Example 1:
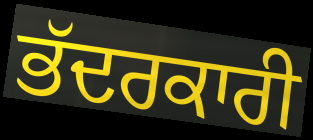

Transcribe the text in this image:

ਭੱਦਰਕਾਰੀ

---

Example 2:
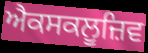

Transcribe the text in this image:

ਐਕਸਕਲੂਜ਼ਿਵ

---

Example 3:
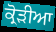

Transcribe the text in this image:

ਕ੍ਰੋੜੀਆ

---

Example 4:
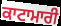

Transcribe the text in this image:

ਕਾਟਾਮਾਰੀ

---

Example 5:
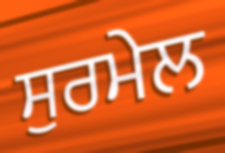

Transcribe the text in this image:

ਸੁਰਮੇਲ